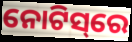
ନୋଟିସ୍‌ରେ